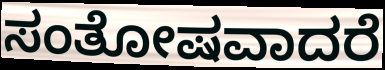
ಸಂತೋಷವಾದರೆ